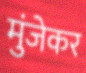
मुंजेकर